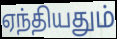
ஏந்தியதும்